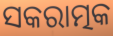
ସକରାତ୍ମକ